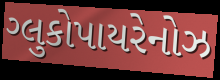
ગ્લુકોપાયરેનોઝ